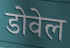
डोवेल